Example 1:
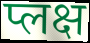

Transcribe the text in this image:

प्लक्ष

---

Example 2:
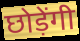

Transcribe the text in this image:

छोड़ेंगी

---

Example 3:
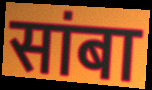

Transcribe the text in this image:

सांबा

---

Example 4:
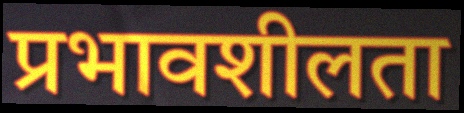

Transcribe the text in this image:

प्रभावशीलता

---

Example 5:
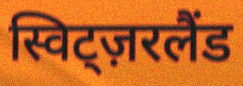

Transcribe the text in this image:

स्विट्ज़रलैंड